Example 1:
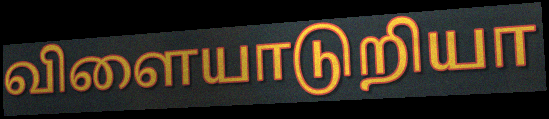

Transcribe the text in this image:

விளையாடுறியா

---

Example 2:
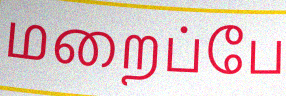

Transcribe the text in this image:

மறைப்பே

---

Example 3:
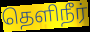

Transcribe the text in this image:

தெளிநீர்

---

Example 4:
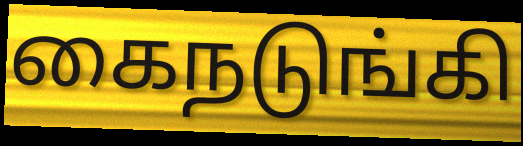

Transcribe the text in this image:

கைநடுங்கி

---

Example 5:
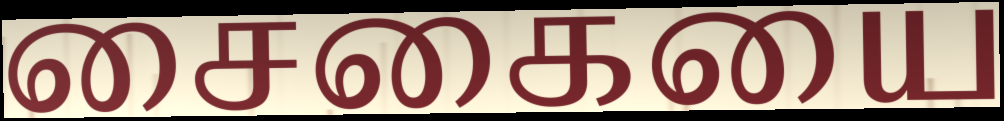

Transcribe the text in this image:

சைகையை